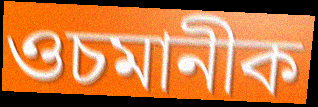
ওচমানীক